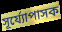
সূৰ্য্যোপাসক